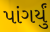
પાંગર્યું